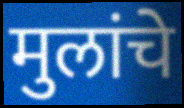
मुलांचे